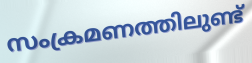
സംക്രമണത്തിലുണ്ട്